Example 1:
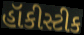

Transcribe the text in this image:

હૉકીસ્ટીક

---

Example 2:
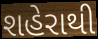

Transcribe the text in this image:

શહેરાથી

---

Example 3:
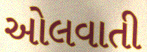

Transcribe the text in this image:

ઓલવાતી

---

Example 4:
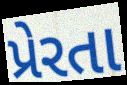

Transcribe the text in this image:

પ્રેરતા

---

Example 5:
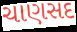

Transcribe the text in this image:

ચાણસદ